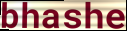
bhashe